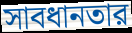
সাবধানতার